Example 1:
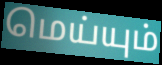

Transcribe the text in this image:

மெய்யும்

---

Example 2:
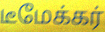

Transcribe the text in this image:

டீமேக்கர்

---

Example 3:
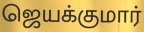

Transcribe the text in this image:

ஜெயக்குமார்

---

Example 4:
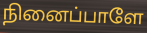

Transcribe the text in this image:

நினைப்பாளே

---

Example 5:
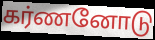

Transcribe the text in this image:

கர்ணனோடு